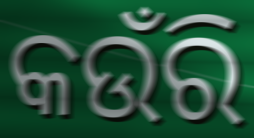
କଉଁରି